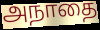
அநாதை